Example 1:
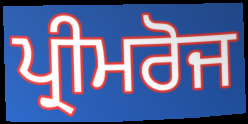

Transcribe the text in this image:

ਪ੍ਰੀਮਰੋਜ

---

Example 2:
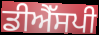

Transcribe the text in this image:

ਡੀਐੱਸਪੀ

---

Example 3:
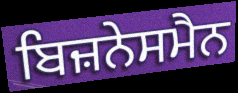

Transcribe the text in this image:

ਬਿਜ਼ਨੇਸਮੈਨ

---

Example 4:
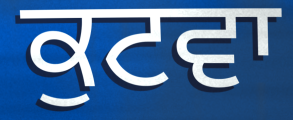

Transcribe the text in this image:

ਕੁਟਵਾ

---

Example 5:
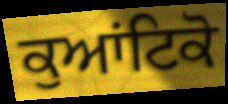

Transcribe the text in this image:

ਕੁਆਂਟਿਕੋ